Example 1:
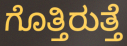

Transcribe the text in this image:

ಗೊತ್ತಿರುತ್ತೆ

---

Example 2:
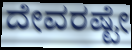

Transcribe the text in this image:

ದೇವರಷ್ಟೇ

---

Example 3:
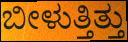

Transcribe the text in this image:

ಬೀಳುತ್ತಿತ್ತು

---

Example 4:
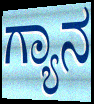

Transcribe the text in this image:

ಗ್ಯಾನ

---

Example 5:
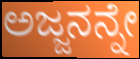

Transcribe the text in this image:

ಅಜ್ಜನನ್ನೇ